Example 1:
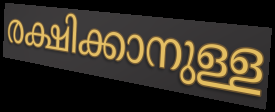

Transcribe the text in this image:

രക്ഷിക്കാനുള്ള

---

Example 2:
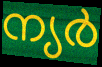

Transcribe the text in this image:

ന്യർ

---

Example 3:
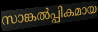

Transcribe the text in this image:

സാങ്കൽപ്പികമായ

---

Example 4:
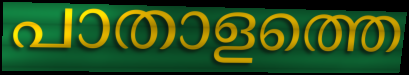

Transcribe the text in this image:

പാതാളത്തെ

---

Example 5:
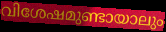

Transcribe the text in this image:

വിശേഷമുണ്ടായാലും